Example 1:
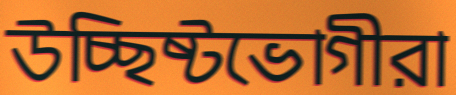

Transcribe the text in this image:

উচ্ছিষ্টভোগীরা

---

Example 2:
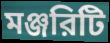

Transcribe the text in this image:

মঞ্জরিটি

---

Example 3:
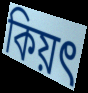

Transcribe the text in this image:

কিয়ৎ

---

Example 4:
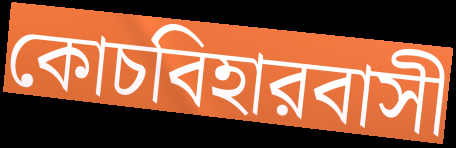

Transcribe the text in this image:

কোচবিহারবাসী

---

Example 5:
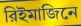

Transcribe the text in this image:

রিইমাজিনে